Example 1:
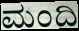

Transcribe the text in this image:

ಮಂದಿ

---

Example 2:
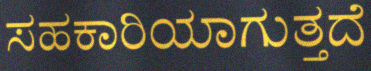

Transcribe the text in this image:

ಸಹಕಾರಿಯಾಗುತ್ತದೆ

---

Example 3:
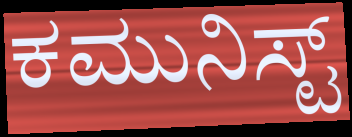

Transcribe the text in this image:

ಕಮುನಿಸ್ಟ್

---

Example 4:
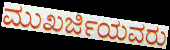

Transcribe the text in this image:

ಮುಖರ್ಜಿಯವರು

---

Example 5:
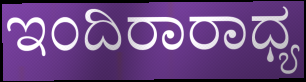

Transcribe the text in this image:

ಇಂದಿರಾರಾಧ್ಯ